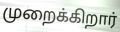
முறைக்கிறார்